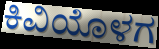
ಕಿವಿಯೊಳಗ